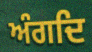
ਅੰਗਦਿ